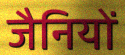
जैनियों